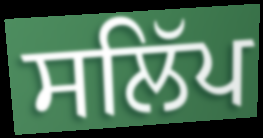
ਸਲਿੱਪ